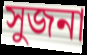
সুজনা